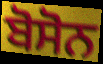
ਬੋਸੋਨ